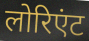
लोरिएंट